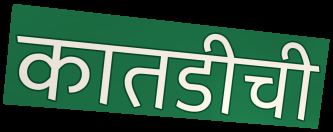
कातडीची